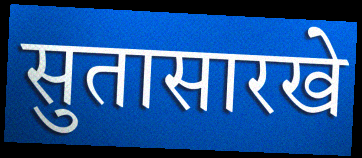
सुतासारखे